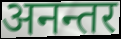
अनन्तर